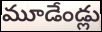
మూడేండ్లు